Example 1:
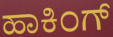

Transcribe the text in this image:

ಹಾಕಿಂಗ್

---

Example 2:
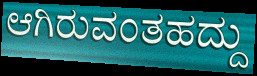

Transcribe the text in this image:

ಆಗಿರುವಂತಹದ್ದು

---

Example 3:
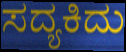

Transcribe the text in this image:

ಸದ್ಯಕಿದು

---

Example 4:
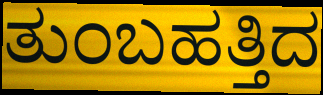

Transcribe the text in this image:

ತುಂಬಹತ್ತಿದ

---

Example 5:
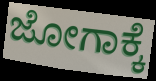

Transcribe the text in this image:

ಜೋಗಾಕ್ಕೆ